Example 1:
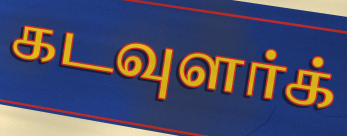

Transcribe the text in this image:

கடவுளர்க்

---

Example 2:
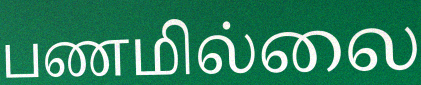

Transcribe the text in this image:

பணமில்லை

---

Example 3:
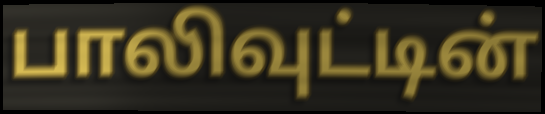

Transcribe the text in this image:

பாலிவுட்டின்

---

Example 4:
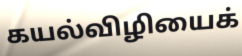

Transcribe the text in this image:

கயல்விழியைக்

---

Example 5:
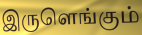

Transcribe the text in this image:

இருளெங்கும்